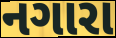
નગારા